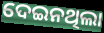
ଦେଇନଥିଲା